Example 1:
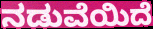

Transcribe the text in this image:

ನಡುವೆಯಿದೆ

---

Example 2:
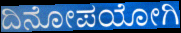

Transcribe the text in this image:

ದಿನೋಪಯೋಗಿ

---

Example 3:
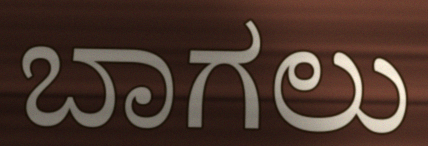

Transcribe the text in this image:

ಬಾಗಲು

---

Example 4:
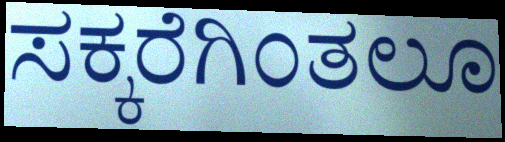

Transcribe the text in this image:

ಸಕ್ಕರೆಗಿಂತಲೂ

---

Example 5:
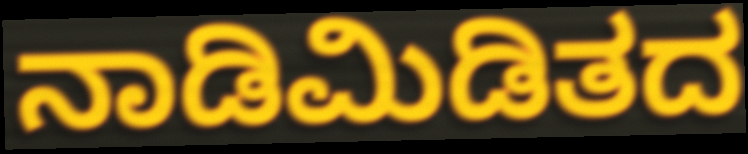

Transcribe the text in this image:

ನಾಡಿಮಿಡಿತದ